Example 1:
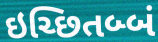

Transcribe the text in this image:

ઇચ્છિતબ્બં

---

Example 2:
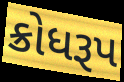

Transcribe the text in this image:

ક્રોધરૂપ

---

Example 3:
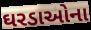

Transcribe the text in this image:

ઘરડાઓના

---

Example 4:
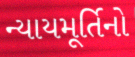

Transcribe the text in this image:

ન્યાયમૂર્તિનો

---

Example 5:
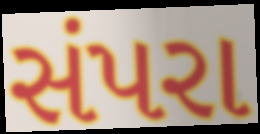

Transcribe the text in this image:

સંપરા